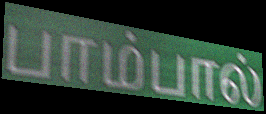
பாம்பால்